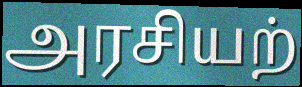
அரசியற்